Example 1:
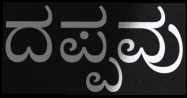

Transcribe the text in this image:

ದಪ್ಪವು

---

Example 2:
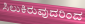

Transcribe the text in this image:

ಸಿಲುಕಿರುವುದರಿಂದ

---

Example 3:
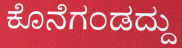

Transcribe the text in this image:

ಕೊನೆಗಂಡದ್ದು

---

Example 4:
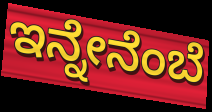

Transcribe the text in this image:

ಇನ್ನೇನೆಂಬೆ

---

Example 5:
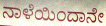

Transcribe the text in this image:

ನಾಳೆಯಿಂದಾನೇ